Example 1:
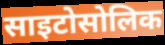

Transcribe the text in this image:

साइटोसोलिक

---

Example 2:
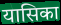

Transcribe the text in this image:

यासिका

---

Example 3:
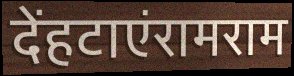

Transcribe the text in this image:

देंहटाएंरामराम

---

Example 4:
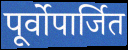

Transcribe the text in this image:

पूर्वोपार्जित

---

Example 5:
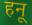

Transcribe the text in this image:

हनू